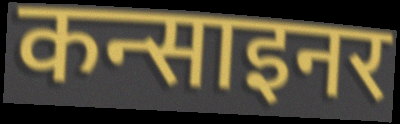
कन्साइनर